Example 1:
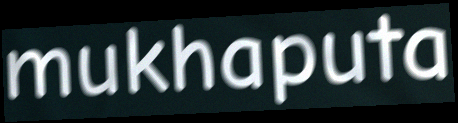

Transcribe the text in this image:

mukhaputa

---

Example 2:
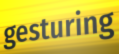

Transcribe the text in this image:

gesturing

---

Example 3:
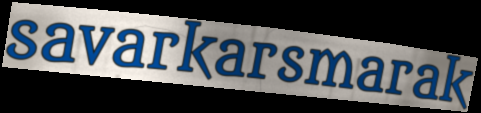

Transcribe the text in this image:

savarkarsmarak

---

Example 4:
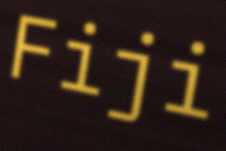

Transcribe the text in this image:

Fiji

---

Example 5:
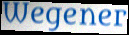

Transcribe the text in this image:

Wegener